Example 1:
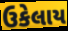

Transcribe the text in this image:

ઉકેલાય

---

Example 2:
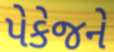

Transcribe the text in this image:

પેકેજને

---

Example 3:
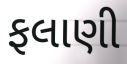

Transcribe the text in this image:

ફલાણી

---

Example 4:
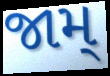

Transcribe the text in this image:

જામ્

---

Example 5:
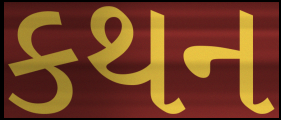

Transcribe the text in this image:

કથન